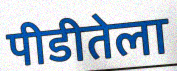
पीडीतेला